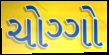
ચોગ્ગો